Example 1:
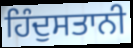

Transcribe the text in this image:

ਹਿੰਦੁਸਤਾਨੀ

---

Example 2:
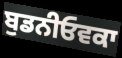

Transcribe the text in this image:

ਬੁਡਨੀਓਵਕਾ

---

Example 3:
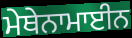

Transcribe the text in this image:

ਮੇਥੇਨਾਮਾਈਨ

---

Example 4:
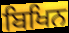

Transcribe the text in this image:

ਬਿਖਿਨ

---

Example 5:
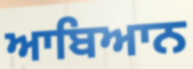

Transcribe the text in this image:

ਆਬਿਆਨ